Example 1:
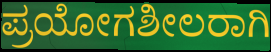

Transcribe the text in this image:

ಪ್ರಯೋಗಶೀಲರಾಗಿ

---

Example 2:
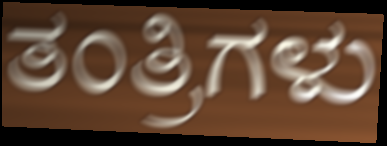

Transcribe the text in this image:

ತಂತ್ರಿಗಳು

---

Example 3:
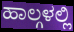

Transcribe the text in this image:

ಹಾಲ್ಗಳಲ್ಲಿ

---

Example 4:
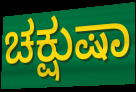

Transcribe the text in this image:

ಚಕ್ಷುಷಾ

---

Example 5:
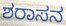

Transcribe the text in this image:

ಶರಾಸನ